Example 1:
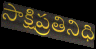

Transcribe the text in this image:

సాక్షిప్రతినిధి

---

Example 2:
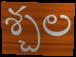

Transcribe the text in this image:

శ్చల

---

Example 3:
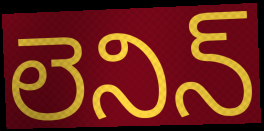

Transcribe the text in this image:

లెనిన్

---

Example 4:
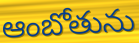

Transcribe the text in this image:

ఆంబోతును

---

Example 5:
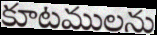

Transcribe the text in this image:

కూటములను